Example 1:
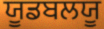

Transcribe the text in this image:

ਯੂਡਬਲਯੂ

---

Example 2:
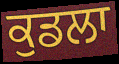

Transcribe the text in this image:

ਕੁਡਲਾ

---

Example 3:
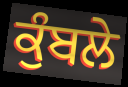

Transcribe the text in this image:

ਕੁੰਬਲੇ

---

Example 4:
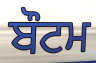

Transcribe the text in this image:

ਬੌਟਮ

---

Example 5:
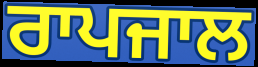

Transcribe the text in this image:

ਰਾਪਜਾਲ